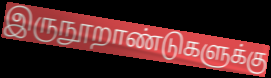
இருநூறாண்டுகளுக்கு